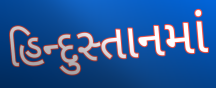
હિન્દુસ્તાનમાં